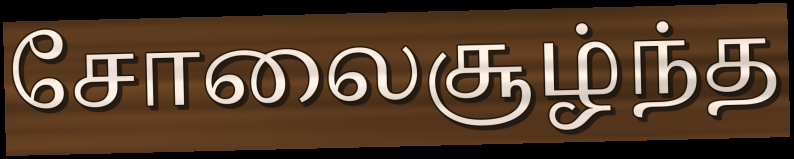
சோலைசூழ்ந்த